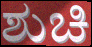
ಶುಚಿ